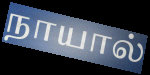
நாயால்